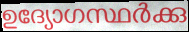
ഉദ്യോഗസ്ഥർക്കു